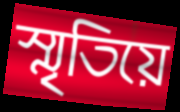
স্মৃতিয়ে